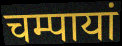
चम्पायां